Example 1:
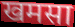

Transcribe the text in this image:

खमसा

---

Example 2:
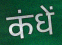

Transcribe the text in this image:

कंधें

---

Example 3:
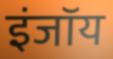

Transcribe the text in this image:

इंजॉय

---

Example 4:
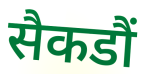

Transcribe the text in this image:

सैकडौं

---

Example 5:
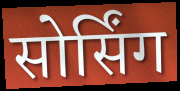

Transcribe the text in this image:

सोर्सिंग